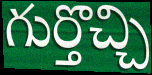
గుర్తొచ్చి